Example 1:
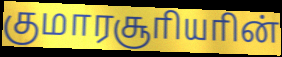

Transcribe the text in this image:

குமாரசூரியரின்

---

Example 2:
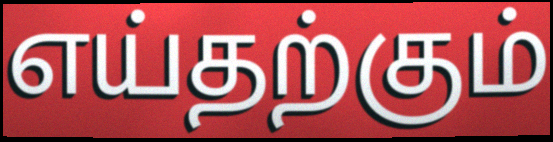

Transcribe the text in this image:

எய்தற்கும்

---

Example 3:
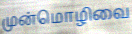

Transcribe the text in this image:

முன்மொழிவை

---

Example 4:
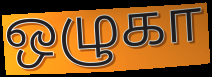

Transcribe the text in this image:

ஒழுகா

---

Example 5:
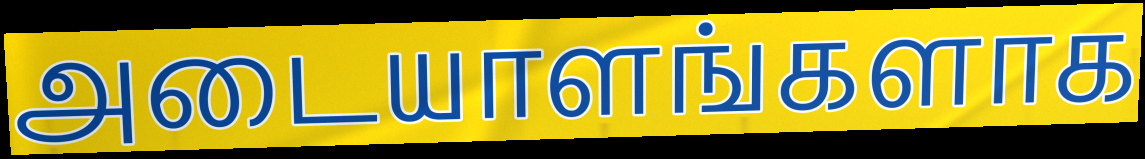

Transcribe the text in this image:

அடையாளங்களாக